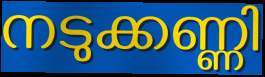
നടുക്കണ്ണി